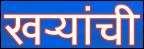
खऱ्यांची